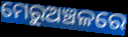
ମେରୁଅଞ୍ଚଳରେ